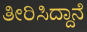
ತೀರಿಸಿದ್ದಾನೆ